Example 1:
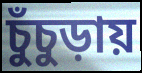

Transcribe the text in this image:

চুঁচুড়ায়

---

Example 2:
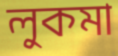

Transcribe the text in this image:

লুকমা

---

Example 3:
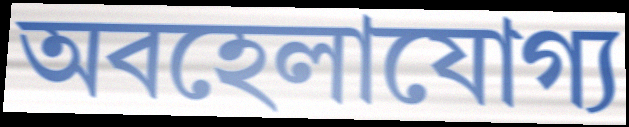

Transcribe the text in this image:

অবহেলাযোগ্য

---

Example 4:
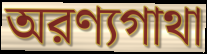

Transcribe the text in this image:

অরণ্যগাথা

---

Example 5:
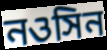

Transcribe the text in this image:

নওসিন